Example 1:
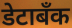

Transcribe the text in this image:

डेटाबँक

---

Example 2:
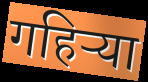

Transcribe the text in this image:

गहिऱ्या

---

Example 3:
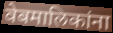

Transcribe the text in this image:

वेबमालिकांना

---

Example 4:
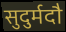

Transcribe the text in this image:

सुदुर्मदौ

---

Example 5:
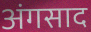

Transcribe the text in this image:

अंगसाद